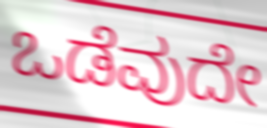
ಒಡೆವುದೇ